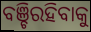
ବଞ୍ଚିରହିବାକୁ